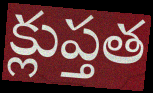
క్లుప్తత